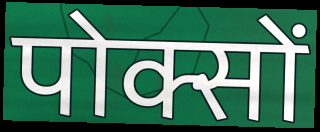
पोक्सों